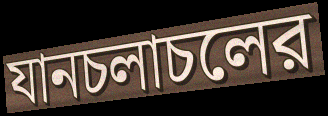
যানচলাচলের